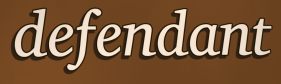
defendant